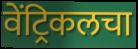
वेंट्रिकलचा